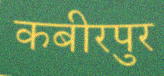
कबीरपुर